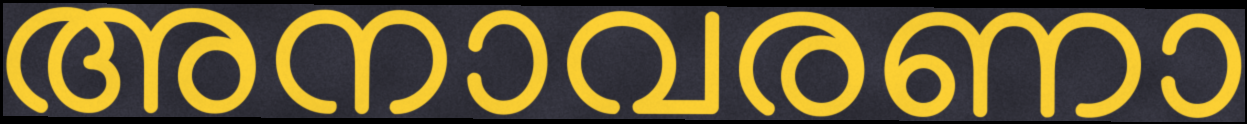
അനാവരണാ